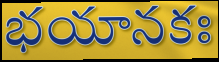
భయానకః